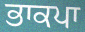
ਭਾਕਪਾ